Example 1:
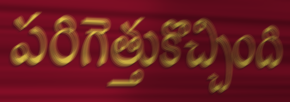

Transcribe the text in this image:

పరిగెత్తుకొచ్చింది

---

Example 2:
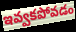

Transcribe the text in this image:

ఇవ్వకపోవడం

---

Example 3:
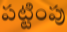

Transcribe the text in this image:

పట్టింపు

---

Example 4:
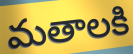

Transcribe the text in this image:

మతాలకి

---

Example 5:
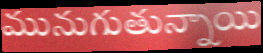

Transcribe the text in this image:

మునుగుతున్నాయి